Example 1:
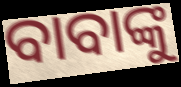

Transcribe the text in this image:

ବାବାଙ୍କୁ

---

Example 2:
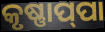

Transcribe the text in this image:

କୃଷ୍ଣାପ୍‌ପା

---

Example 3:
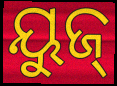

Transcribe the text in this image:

ୟୁଜ୍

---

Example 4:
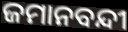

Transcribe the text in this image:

ଜମାନବନ୍ଦୀ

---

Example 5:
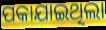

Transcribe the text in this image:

ପକାଯାଇଥିଲା